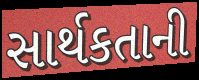
સાર્થકતાની